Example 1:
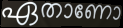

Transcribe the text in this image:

ഏതാണോ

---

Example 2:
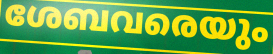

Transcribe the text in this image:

ശേബവരെയും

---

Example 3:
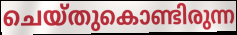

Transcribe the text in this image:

ചെയ്തുകൊണ്ടിരുന്ന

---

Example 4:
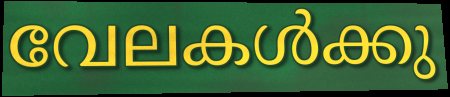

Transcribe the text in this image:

വേലകൾക്കു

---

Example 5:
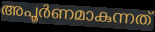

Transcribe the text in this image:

അപൂർണമാകുന്നത്